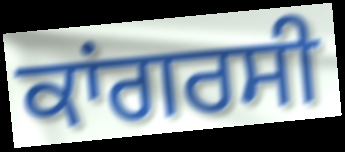
ਕਾਂਗਰਸੀ